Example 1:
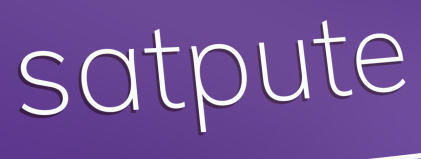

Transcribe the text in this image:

satpute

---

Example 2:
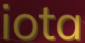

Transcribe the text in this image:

iota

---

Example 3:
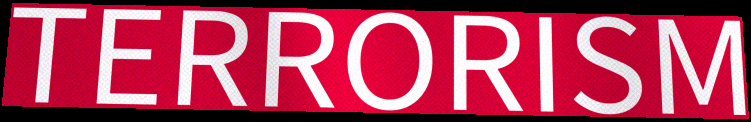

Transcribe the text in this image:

TERRORISM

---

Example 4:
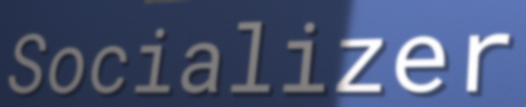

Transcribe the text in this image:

Socializer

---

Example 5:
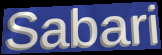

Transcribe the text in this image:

Sabari